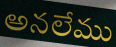
అనలేము